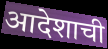
आदेशाची